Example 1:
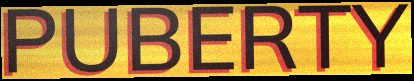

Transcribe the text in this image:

PUBERTY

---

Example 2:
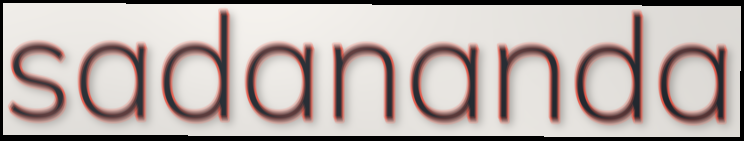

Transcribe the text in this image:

sadananda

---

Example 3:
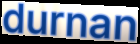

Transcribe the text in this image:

durnan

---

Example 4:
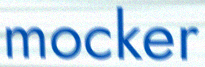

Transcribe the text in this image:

mocker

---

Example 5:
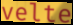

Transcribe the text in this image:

velte